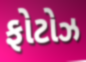
ફોટોઝ